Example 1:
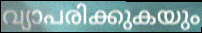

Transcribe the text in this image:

വ്യാപരിക്കുകയും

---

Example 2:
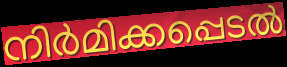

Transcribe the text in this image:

നിർമിക്കപ്പെടൽ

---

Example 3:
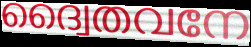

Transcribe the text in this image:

ദ്വൈതവനേ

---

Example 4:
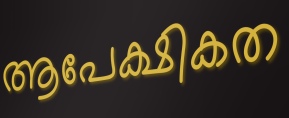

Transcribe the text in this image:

ആപേക്ഷികത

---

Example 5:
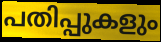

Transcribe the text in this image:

പതിപ്പുകളും